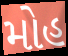
મોહ